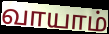
வாயாம்